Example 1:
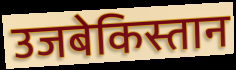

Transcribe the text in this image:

उजबेकिस्तान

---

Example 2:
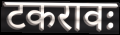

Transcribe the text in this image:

टकरावः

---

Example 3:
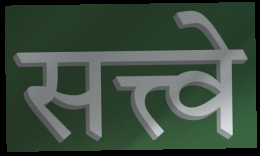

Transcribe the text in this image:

सत्त्वे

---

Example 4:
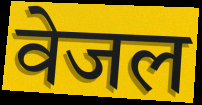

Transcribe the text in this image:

वेजल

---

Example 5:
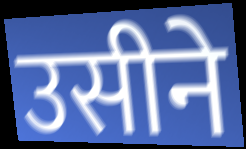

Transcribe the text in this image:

उसीने